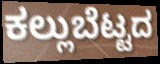
ಕಲ್ಲುಬೆಟ್ಟದ